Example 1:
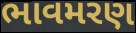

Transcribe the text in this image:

ભાવમરણ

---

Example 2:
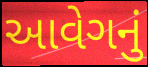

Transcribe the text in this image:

આવેગનું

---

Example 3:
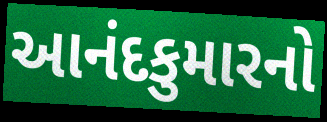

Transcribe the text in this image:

આનંદકુમારનો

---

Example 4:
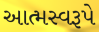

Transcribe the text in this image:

આત્મસ્વરૂપે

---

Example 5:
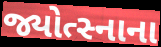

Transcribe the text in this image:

જ્યોત્સ્નાના